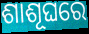
ଶାଶୂଘରେ